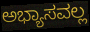
ಅಭ್ಯಾಸವಲ್ಲ